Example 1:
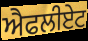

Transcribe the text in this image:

ਐਫਲੀਏਟ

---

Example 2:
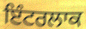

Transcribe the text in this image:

ਇੰਟਰਲਾਕ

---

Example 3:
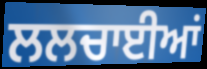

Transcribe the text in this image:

ਲਲਚਾਈਆਂ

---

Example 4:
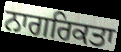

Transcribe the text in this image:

ਨਾਗਰਿਕਤਾ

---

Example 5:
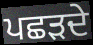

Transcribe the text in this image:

ਪਛੜਦੇ